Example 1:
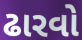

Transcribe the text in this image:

ઢારવો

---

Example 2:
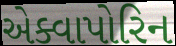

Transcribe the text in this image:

એક્વાપોરિન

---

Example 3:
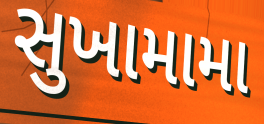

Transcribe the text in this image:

સુખામામા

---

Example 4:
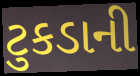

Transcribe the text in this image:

ટુકડાની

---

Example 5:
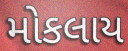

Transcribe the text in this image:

મોકલાય